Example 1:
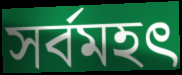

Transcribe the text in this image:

সর্বমহৎ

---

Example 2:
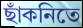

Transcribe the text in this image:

ছাঁকনিতে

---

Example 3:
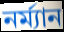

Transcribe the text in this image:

নর্ম্যান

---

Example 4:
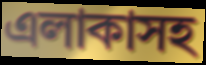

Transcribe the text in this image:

এলাকাসহ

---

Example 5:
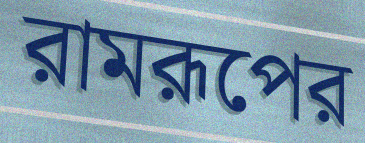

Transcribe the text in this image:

রামরূপের